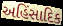
અહિંસાદિક